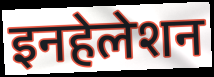
इनहेलेशन